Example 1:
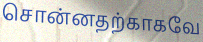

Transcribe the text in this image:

சொன்னதற்காகவே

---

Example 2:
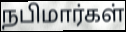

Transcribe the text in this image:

நபிமார்கள்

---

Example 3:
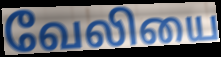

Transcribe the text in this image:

வேலியை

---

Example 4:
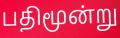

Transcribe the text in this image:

பதிமூன்று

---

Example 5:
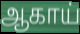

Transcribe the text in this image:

ஆகாய்